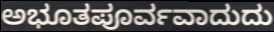
ಅಭೂತಪೂರ್ವವಾದುದು